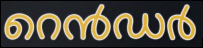
റെൻഡർ